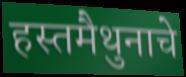
हस्तमैथुनाचे